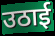
उठाई